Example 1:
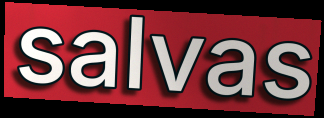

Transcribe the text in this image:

salvas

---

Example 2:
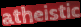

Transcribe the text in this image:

atheistic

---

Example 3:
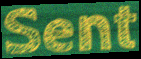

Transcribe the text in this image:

Sent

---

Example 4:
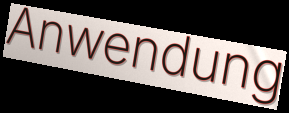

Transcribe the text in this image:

Anwendung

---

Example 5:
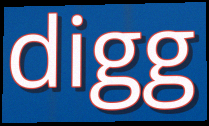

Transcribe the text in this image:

digg